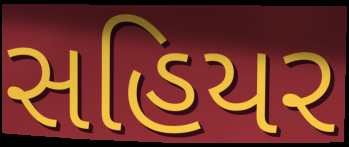
સહિયર